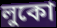
লুকো